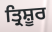
ਤ੍ਰਿਸ਼ੂਰ